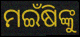
ମଇଁଷିଙ୍କୁ